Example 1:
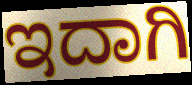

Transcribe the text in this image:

ಇದಾಗಿ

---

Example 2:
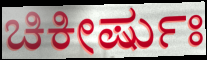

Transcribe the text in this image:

ಚಿಕೀರ್ಷುಃ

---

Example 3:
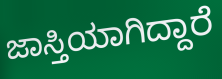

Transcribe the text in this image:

ಜಾಸ್ತಿಯಾಗಿದ್ದಾರೆ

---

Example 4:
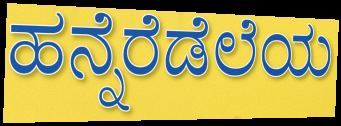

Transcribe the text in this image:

ಹನ್ನೆರೆಡೆಲೆಯ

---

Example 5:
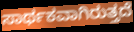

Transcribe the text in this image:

ಸಾರ್ಥಕವಾಗಿರುತ್ತದೆ